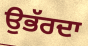
ਉਭੱਰਦਾ